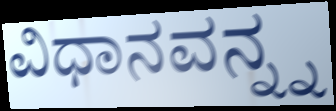
ವಿಧಾನವನ್ನ್ನ